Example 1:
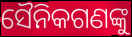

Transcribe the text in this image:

ସୈନିକଗଣଙ୍କୁ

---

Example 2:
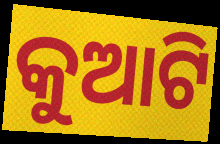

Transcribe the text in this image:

କୁଆଟି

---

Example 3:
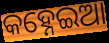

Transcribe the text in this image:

କହ୍ନେଇଆ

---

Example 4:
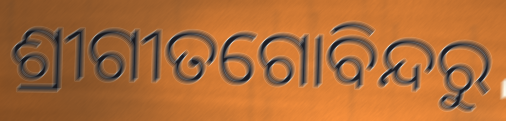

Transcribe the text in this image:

ଶ୍ରୀଗୀତଗୋବିନ୍ଦରୁ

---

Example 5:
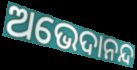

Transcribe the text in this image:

ଅଭେଦାନନ୍ଦ